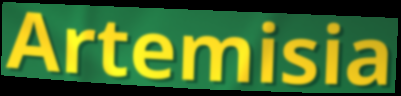
Artemisia